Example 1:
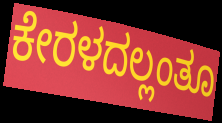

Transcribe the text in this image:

ಕೇರಳದಲ್ಲಂತೂ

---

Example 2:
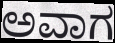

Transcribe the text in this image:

ಅವಾಗ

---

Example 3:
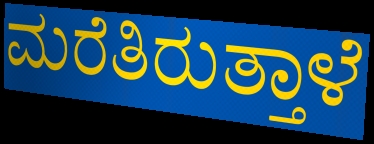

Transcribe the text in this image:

ಮರೆತಿರುತ್ತಾಳೆ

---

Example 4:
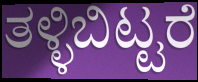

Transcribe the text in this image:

ತಳ್ಳಿಬಿಟ್ಟರೆ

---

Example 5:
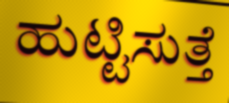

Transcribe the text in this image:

ಹುಟ್ಟಿಸುತ್ತೆ